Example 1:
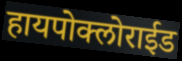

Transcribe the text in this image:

हायपोक्लोराईड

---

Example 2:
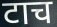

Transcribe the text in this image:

टाच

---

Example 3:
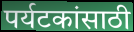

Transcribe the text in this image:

पर्यटकांसाठी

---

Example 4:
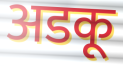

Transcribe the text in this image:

अडकू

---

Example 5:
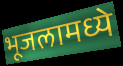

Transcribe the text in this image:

भूजलामध्ये